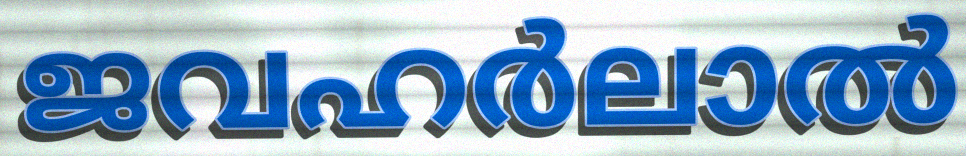
ജവഹർലാൽ